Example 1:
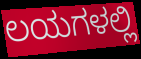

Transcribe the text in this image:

ಲಯಗಳಲ್ಲಿ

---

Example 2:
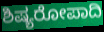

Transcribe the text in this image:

ಶಿಷ್ಯರೋಪಾದಿ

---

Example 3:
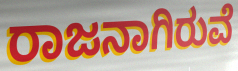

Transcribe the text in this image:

ರಾಜನಾಗಿರುವೆ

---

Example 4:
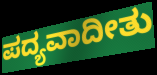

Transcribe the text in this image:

ಪದ್ಯವಾದೀತು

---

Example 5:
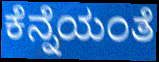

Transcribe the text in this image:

ಕೆನ್ನೆಯಂತೆ